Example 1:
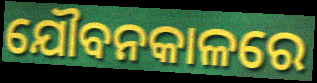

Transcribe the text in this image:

ଯୌବନକାଳରେ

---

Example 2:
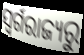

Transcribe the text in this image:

ସ୍ବର୍ଗରାଜ୍ୟରୁ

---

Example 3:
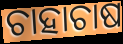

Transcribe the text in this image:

ଚାହାଚାଷ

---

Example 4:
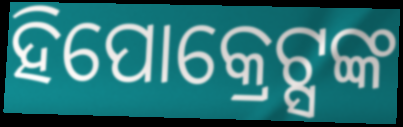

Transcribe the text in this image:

ହିପୋକ୍ରେଟ୍ସଙ୍କ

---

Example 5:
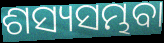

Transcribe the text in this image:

ଶସ୍ୟସମ୍ଭବା